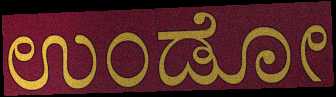
ಉಂಡೋ